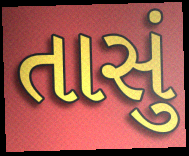
તાસું